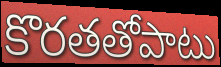
కొరతతోపాటు